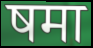
षमा